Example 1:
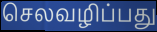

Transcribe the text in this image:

செலவழிப்பது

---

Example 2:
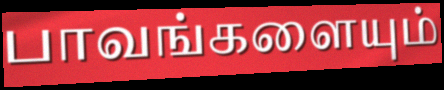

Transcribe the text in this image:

பாவங்களையும்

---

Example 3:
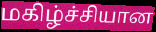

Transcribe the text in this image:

மகிழ்ச்சியான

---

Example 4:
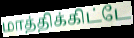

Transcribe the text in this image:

மாத்திக்கிட்டே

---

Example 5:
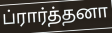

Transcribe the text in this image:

ப்ரார்த்தனா